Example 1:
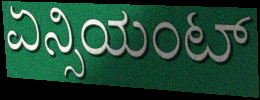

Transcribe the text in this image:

ಏನ್ಸಿಯಂಟ್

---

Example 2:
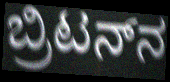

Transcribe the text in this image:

ಬ್ರಿಟನ್‌ನ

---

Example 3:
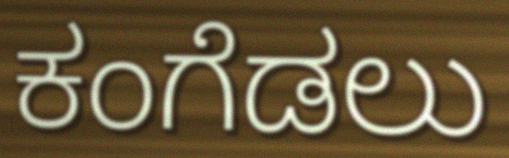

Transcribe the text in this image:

ಕಂಗೆಡಲು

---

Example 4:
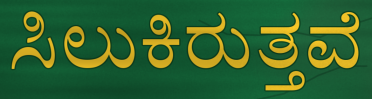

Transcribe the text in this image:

ಸಿಲುಕಿರುತ್ತವೆ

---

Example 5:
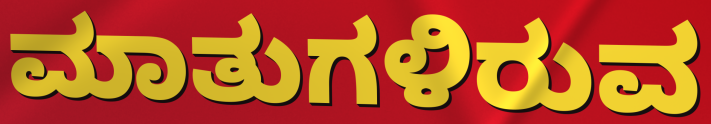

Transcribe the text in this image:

ಮಾತುಗಳಿರುವ